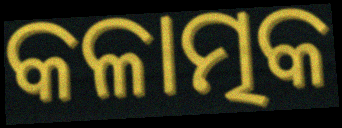
କଳାତ୍ମକ